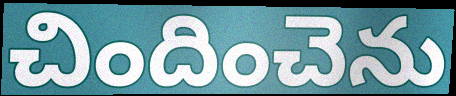
చిందించెను